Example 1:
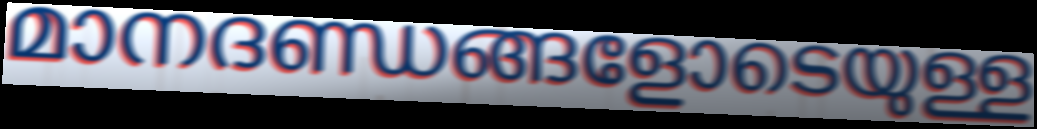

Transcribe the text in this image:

മാനദണ്ഡങ്ങളോടെയുള്ള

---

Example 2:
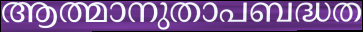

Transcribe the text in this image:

ആത്മാനുതാപബദ്ധത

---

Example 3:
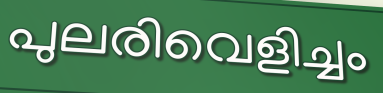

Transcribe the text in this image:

പുലരിവെളിച്ചം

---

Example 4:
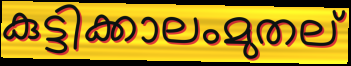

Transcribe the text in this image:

കുട്ടിക്കാലംമുതല്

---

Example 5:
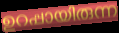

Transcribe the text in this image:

ഉറപ്പായിരുന്ന